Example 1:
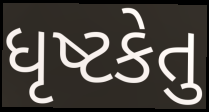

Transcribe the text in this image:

ધૃષ્ટકેતુ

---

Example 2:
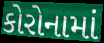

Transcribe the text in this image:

કોરોનામાં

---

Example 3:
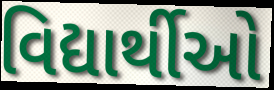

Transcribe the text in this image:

વિદ્યાર્થીઓ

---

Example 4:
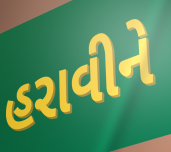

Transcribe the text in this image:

હરાવીને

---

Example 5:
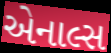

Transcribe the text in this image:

એનાલ્સ